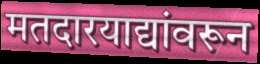
मतदारयाद्यांवरून